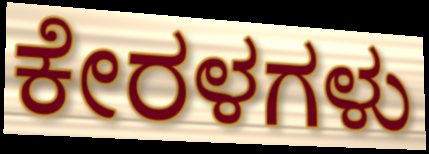
ಕೇರಳಗಳು